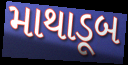
માથાડૂબ